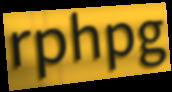
rphpg